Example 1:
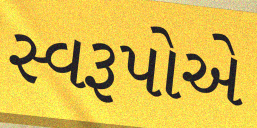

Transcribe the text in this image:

સ્વરૂપોએ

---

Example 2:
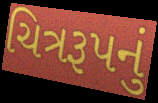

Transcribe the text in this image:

ચિત્રરૂપનું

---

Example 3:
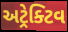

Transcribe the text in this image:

અટ્રેક્ટિવ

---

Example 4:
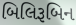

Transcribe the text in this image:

બિલિરૂબિન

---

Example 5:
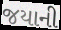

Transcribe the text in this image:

જયાની